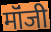
मॉंजी